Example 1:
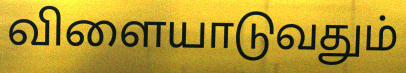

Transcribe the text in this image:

விளையாடுவதும்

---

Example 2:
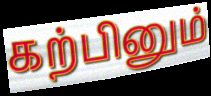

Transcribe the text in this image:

கற்பினும்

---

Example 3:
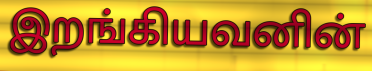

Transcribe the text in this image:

இறங்கியவனின்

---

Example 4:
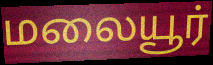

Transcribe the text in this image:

மலையூர்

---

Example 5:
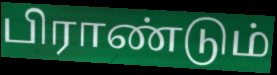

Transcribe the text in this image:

பிராண்டும்